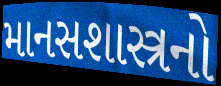
માનસશાસ્ત્રનો